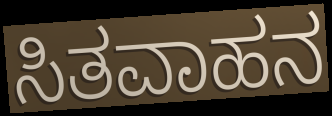
ಸಿತವಾಹನ